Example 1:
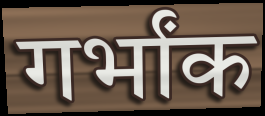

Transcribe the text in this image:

गर्भांक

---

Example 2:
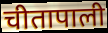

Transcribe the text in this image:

चीतापाली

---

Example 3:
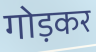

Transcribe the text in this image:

गोड़कर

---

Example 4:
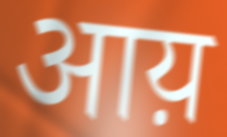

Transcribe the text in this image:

आय़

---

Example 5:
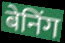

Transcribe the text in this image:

बेनिंग